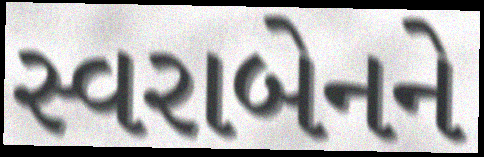
સ્વરાબેનને